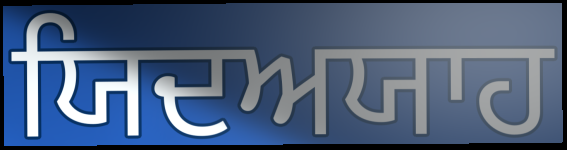
ਯਿਦਅਯਾਹ